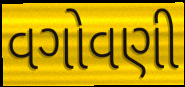
વગોવણી